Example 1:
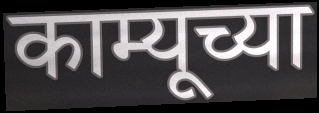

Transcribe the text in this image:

काम्यूच्या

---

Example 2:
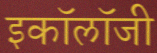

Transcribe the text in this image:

इकॉलॉजी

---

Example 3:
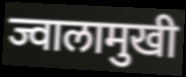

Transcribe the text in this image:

ज्वालामुखी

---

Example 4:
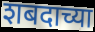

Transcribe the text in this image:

शबदाच्या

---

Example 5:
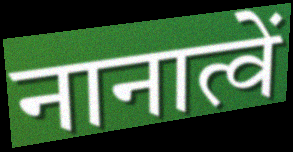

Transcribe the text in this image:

नानात्वें